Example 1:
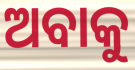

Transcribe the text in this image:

ଅବାକୁ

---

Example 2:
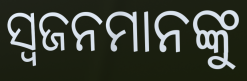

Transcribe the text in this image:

ସ୍ବଜନମାନଙ୍କୁ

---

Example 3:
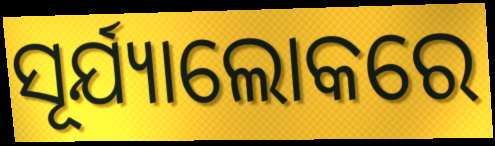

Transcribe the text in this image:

ସୂର୍ଯ୍ୟାଲୋକରେ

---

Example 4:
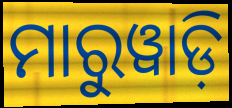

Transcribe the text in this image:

ମାରୁୱାଡ଼ି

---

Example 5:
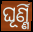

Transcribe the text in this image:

ଘୂର୍ଣ୍ଣି